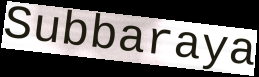
Subbaraya